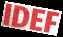
IDEF